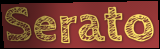
Serato